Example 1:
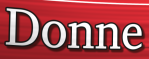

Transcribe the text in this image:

Donne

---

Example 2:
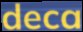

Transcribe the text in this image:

deca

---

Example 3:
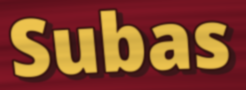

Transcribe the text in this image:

Subas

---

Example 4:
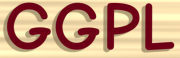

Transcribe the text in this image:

GGPL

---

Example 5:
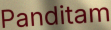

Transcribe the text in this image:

Panditam